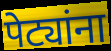
पेट्यांना